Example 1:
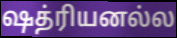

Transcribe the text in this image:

ஷத்ரியனல்ல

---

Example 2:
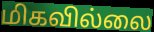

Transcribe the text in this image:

மிகவில்லை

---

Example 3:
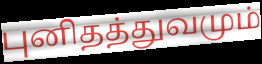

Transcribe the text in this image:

புனிதத்துவமும்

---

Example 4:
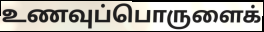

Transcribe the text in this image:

உணவுப்பொருளைக்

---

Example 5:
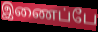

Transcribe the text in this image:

இணைப்பே